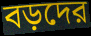
বড়দের